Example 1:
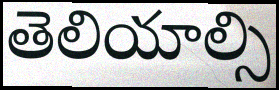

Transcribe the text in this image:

తెలియాల్సి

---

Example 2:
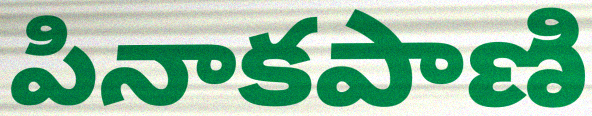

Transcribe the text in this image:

పినాకపాణి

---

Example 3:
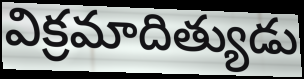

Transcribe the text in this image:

విక్రమాదిత్యుడు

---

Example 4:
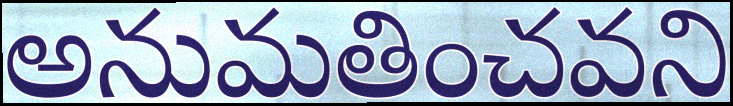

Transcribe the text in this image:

అనుమతించవని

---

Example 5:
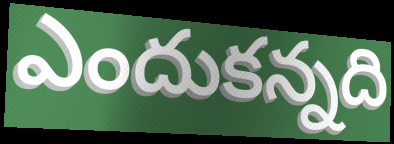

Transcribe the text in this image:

ఎందుకన్నది